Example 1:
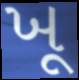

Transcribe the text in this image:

ખૂ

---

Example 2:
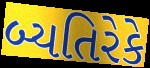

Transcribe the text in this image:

બ્યતિરેકે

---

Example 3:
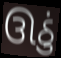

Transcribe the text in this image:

ઊઠું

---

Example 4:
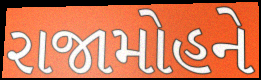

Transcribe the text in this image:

રાજામોહને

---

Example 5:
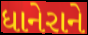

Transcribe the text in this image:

ધાનેરાને